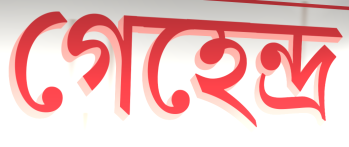
গেহেন্দ্র